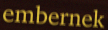
embernek